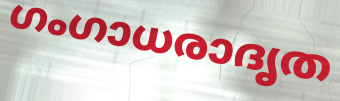
ഗംഗാധരാദൃത